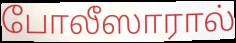
போலீஸாரால்